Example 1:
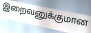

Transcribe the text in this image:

இறைவனுக்குமான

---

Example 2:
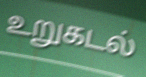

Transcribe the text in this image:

உறுகடல்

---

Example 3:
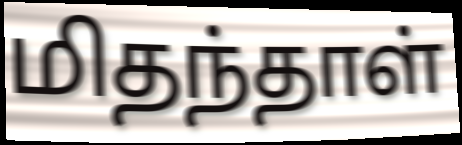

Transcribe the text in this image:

மிதந்தாள்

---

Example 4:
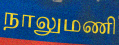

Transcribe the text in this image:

நாலுமணி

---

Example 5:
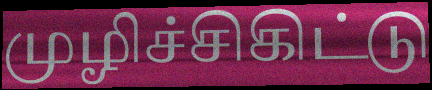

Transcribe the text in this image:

முழிச்சிகிட்டு